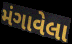
મંગાવેલા